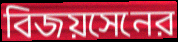
বিজয়সেনের